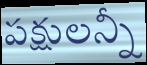
పక్షులన్నీ